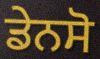
ਡੇਨਸੋ